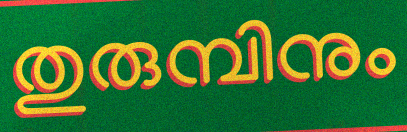
തുരുമ്പിനും